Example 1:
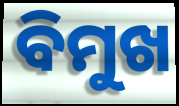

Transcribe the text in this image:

ବିମୁଖ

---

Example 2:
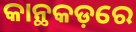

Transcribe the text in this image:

କାନ୍ଥକଡ଼ରେ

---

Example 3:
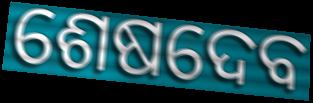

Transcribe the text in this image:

ଶେଷଦେବ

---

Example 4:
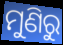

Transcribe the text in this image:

ମୁଣିରୁ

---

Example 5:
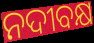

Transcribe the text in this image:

ନଦୀବକ୍ଷ